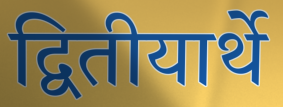
द्वितीयार्थे